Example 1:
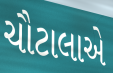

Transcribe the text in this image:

ચૌટાલાએ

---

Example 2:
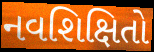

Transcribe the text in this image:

નવશિક્ષિતો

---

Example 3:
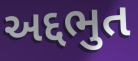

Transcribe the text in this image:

અદ્દભુત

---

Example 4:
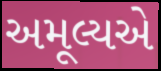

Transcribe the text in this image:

અમૂલ્યએ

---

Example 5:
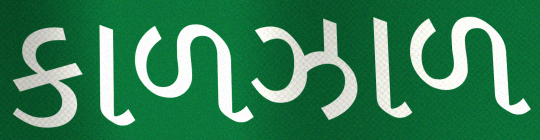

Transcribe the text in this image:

કાળઝાળ